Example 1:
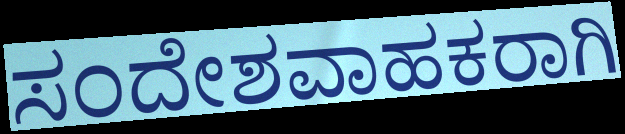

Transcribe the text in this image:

ಸಂದೇಶವಾಹಕರಾಗಿ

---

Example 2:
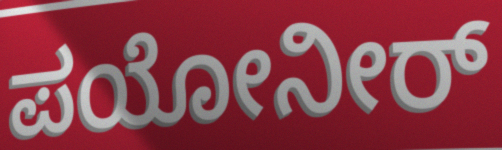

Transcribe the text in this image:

ಪಯೋನೀರ್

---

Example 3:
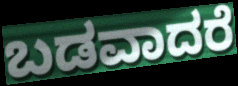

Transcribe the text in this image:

ಬಡವಾದರೆ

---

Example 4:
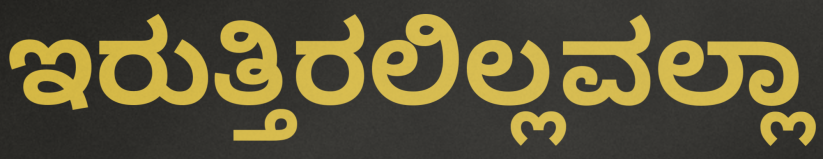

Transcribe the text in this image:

ಇರುತ್ತಿರಲಿಲ್ಲವಲ್ಲಾ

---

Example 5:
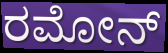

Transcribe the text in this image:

ರಮೋನ್